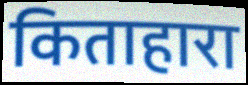
किताहारा